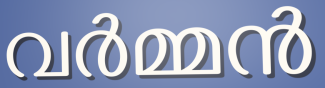
വർമ്മൻ